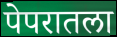
पेपरातला